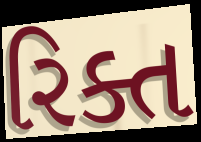
રિક્ત